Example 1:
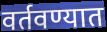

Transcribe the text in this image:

वर्तवण्यात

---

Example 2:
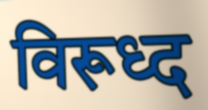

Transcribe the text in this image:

विरूध्द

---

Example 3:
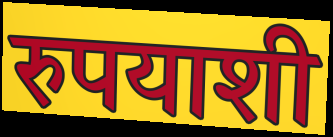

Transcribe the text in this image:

रुपयाशी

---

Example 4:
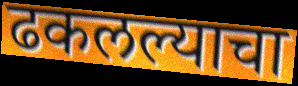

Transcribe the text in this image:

ढकलल्याचा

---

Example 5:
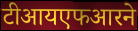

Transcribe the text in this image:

टीआयएफआरने